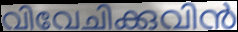
വിവേചിക്കുവിൻ